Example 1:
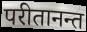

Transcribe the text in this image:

परीतानन्त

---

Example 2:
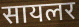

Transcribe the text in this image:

सायलर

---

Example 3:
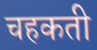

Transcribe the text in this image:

चहकती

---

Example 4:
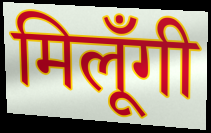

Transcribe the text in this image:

मिलूँगी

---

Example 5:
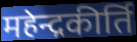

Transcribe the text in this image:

महेन्द्रकीर्ति